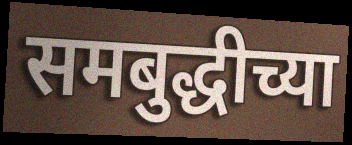
समबुद्धीच्या